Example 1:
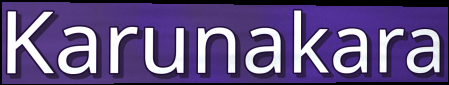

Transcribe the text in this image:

Karunakara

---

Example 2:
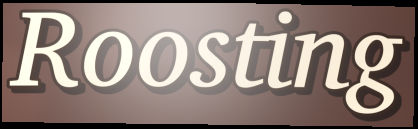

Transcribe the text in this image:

Roosting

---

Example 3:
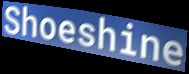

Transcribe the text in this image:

Shoeshine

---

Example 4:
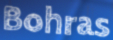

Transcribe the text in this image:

Bohras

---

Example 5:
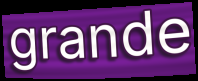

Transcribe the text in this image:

grande